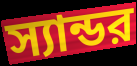
স্যান্ডর